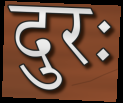
दुरः